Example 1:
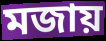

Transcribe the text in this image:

মজায়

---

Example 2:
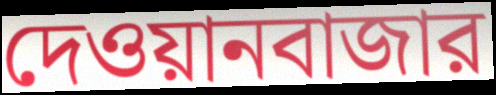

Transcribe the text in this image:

দেওয়ানবাজার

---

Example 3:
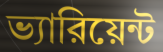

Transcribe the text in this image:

ভ্যারিয়েন্ট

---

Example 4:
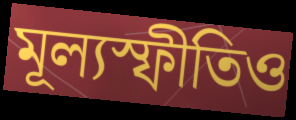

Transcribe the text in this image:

মূল্যস্ফীতিও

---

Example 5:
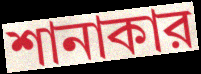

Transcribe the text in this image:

শানাকার